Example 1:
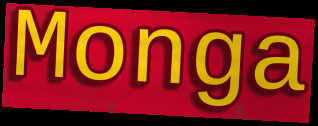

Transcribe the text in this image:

Monga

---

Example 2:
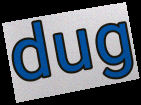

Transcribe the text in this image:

dug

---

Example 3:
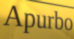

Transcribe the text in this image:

Apurbo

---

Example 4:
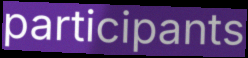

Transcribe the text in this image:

participants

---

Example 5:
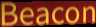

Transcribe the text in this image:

Beacon